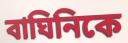
বাঘিনিকে